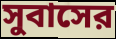
সুবাসের